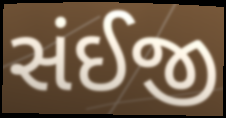
સંઈજી